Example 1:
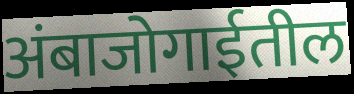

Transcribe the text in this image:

अंबाजोगाईतील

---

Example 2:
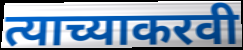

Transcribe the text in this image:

त्याच्याकरवी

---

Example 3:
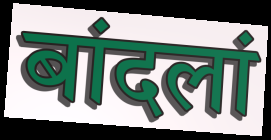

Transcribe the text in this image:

बांदलां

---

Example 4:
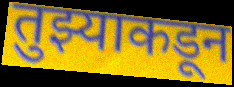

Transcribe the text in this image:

तुझ्याकडून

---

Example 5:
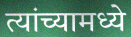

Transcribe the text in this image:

त्यांच्यामध्ये